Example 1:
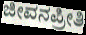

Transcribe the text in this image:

ಜೀವನಪ್ರೀತಿ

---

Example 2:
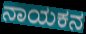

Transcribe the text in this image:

ನಾಯಕನ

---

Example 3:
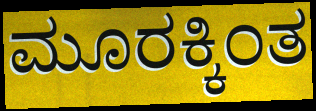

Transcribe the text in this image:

ಮೂರಕ್ಕಿಂತ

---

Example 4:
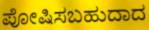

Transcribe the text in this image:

ಪೋಷಿಸಬಹುದಾದ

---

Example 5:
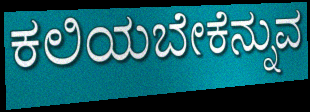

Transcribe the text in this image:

ಕಲಿಯಬೇಕೆನ್ನುವ